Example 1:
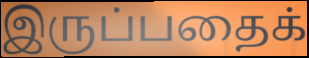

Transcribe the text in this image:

இருப்பதைக்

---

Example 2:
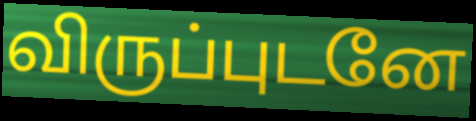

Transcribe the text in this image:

விருப்புடனே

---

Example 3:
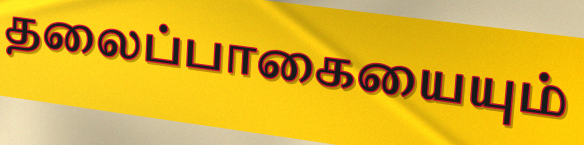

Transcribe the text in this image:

தலைப்பாகையையும்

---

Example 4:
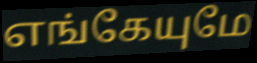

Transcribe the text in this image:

எங்கேயுமே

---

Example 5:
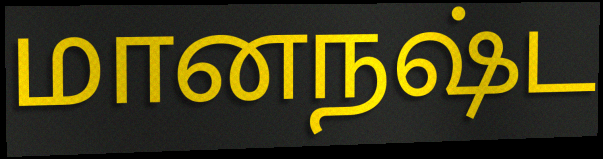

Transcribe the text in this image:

மானநஷ்ட